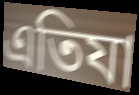
এতিযা